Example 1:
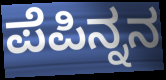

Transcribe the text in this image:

ಪೆಪಿನ್ನನ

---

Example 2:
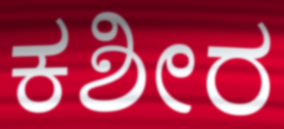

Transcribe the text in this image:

ಕಶೀರ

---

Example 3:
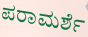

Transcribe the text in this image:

ಪರಾಮರ್ಶೆ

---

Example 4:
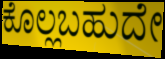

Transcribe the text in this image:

ಕೊಲ್ಲಬಹುದೇ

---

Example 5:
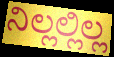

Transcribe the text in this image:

ನಿಲ್ಲಲ್ಲಿಲ್ಲ